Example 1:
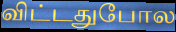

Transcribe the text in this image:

விட்டதுபோல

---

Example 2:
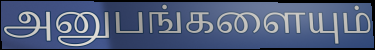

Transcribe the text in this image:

அனுபங்களையும்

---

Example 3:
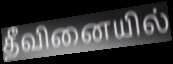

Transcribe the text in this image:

தீவினையில்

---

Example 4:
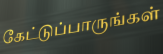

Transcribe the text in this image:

கேட்டுப்பாருங்கள்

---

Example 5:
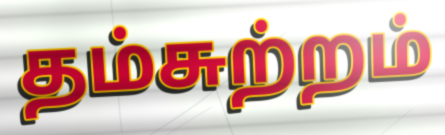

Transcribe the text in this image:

தம்சுற்றம்